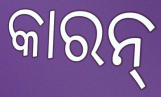
କାରନ୍